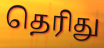
தெரிது